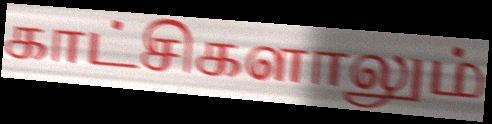
காட்சிகளாலும்